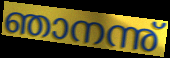
ഞാനന്നു്